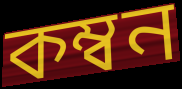
কম্বন